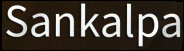
Sankalpa